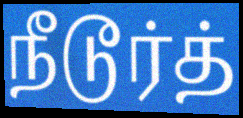
நீடூர்த்